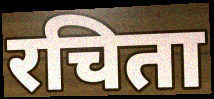
रचिता